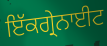
ਇੱਕਗ੍ਰੇਨਾਈਟ